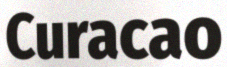
Curacao